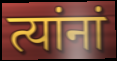
त्यांनां